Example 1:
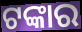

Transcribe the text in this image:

ଟଙ୍କାର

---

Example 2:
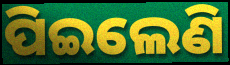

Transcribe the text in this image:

ପିଇଲେଣି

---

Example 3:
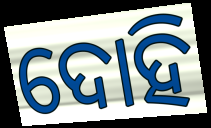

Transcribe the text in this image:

ଦୋହି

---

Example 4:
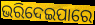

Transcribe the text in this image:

ଭରିଦେଇପାରେ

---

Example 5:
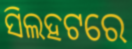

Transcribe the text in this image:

ସିଲହଟରେ